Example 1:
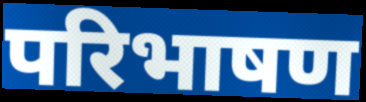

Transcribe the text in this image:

परिभाषण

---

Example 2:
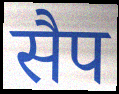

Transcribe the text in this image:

सैप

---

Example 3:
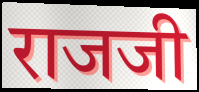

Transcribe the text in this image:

राजजी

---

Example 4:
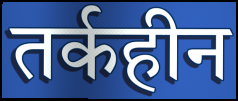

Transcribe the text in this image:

तर्कहीन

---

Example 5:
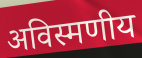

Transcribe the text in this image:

अविस्मणीय